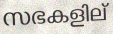
സഭകളില്